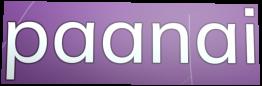
paanai